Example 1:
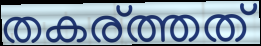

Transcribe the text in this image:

തകര്ത്തത്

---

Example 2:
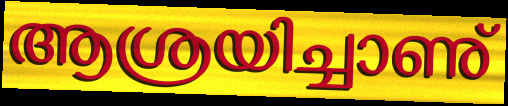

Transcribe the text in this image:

ആശ്രയിച്ചാണു്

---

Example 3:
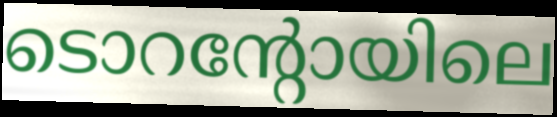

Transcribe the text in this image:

ടൊറന്റോയിലെ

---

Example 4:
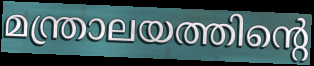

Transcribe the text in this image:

മന്ത്രാലയത്തിന്റെ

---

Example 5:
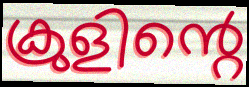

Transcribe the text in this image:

ക്രുളിന്റെ